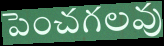
పెంచగలవు